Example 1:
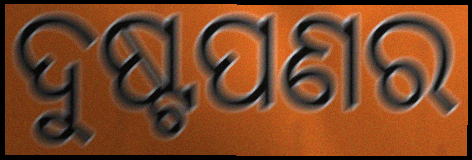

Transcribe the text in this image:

ଦୁଷ୍ଟପଣର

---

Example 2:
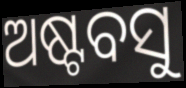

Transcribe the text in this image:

ଅଷ୍ଟବସୁ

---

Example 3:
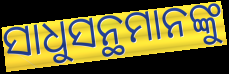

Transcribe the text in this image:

ସାଧୁସନ୍ଥମାନଙ୍କୁ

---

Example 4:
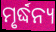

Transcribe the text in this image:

ମୃର୍ଦ୍ଧନ୍ୟ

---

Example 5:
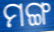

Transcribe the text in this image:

ମଙ୍ଗ